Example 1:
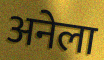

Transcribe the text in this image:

अनेला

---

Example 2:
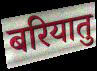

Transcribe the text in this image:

बरियातु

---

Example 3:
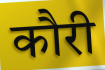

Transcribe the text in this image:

कौरी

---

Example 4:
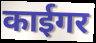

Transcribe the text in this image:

काईगर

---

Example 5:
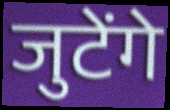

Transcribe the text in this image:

जुटेंगे